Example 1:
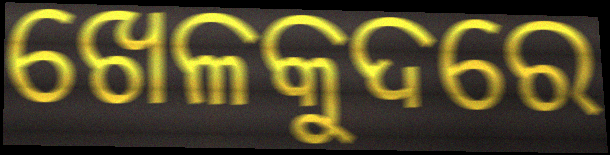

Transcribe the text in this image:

ଖେଳକୁଦରେ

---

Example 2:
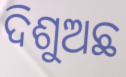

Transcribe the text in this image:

ଦିଶୁଅଛ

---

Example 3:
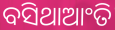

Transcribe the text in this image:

ବସିଥାଆଂତି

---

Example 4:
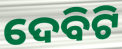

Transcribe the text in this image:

ଦେବିଟି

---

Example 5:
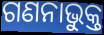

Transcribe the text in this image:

ଗଣନାଭୁକ୍ତ